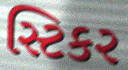
સ્ટિકર